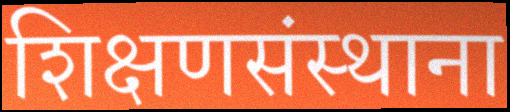
शिक्षणसंस्थाना